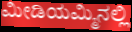
ಮೀಡಿಯಮ್ಮಿನಲ್ಲಿ